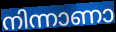
നിന്നാണാ